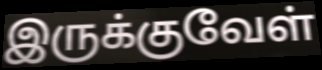
இருக்குவேள்